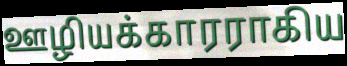
ஊழியக்காரராகிய